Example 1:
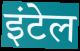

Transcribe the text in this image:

इंटेल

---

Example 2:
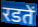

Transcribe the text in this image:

रडतें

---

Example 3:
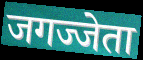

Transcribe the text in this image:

जगज्जेता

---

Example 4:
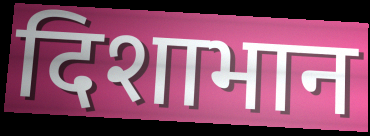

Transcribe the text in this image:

दिशाभान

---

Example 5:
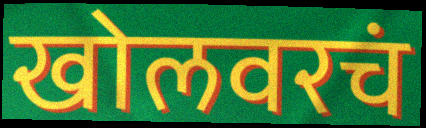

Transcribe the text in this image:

खोलवरचं